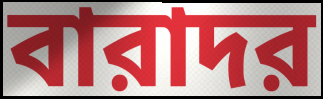
বারাদর